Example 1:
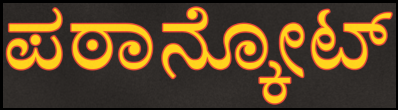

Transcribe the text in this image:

ಪಠಾನ್ಕೋಟ್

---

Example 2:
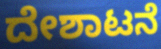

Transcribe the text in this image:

ದೇಶಾಟನೆ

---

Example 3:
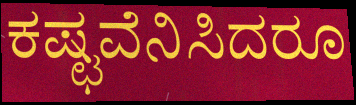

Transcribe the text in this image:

ಕಷ್ಟವೆನಿಸಿದರೂ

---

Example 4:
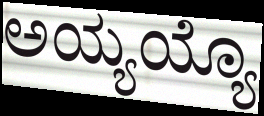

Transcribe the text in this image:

ಅಯ್ಯಯ್ಯೊ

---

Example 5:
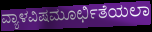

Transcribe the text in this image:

ವ್ಯಾಳವಿಷಮೂರ್ಛಿತೆಯಲಾ